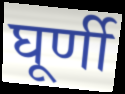
घूर्णी